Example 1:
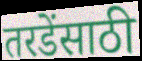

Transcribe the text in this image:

तरडेंसाठी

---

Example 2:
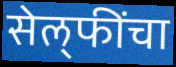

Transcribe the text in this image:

सेल्फींचा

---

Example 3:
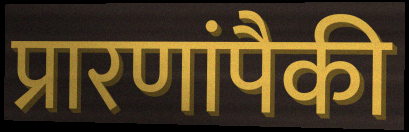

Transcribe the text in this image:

प्रारणांपैकी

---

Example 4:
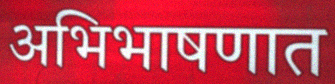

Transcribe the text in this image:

अभिभाषणात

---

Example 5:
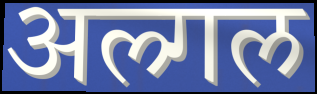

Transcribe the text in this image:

अल्गल